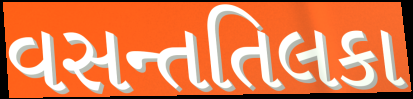
વસન્તતિલકા